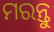
ମରନ୍ତୁ